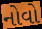
નોવો